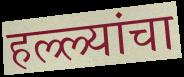
हल्ल्यांचा